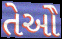
તેઓે